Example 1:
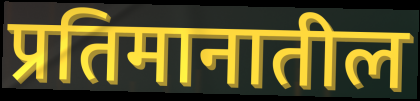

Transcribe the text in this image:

प्रतिमानातील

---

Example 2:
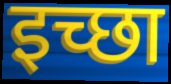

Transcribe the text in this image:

इच्छा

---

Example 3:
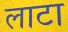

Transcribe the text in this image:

लाटा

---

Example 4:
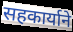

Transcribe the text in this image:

सहकार्याने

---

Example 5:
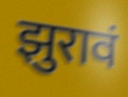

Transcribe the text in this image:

झुरावं